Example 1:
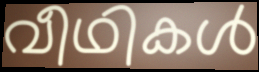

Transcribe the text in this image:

വീഥികൾ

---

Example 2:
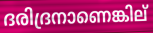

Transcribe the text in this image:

ദരിദ്രനാണെങ്കില്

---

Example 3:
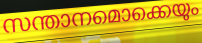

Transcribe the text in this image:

സന്താനമൊക്കെയും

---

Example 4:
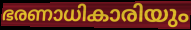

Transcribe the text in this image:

ഭരണാധികാരിയും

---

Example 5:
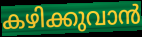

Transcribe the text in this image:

കഴിക്കുവാൻ